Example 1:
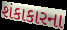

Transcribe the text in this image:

શંકાકારના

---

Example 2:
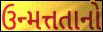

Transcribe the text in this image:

ઉન્મત્તતાનો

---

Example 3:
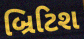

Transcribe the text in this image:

બ્રિટિશ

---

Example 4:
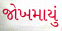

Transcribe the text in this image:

જોખમાયું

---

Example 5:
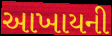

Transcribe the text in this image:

આખાયની